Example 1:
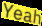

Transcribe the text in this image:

Yeah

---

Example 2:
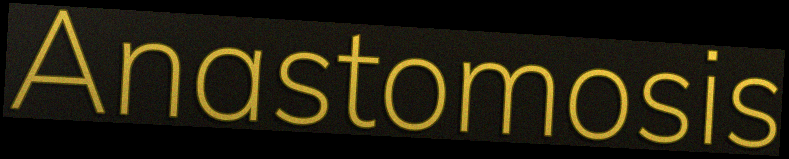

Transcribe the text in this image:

Anastomosis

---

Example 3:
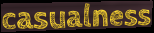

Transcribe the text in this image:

casualness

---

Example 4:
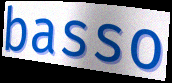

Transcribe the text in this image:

basso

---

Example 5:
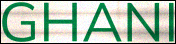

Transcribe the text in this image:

GHANI